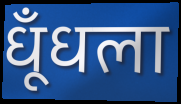
धूँधला